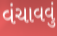
વંચાવવું